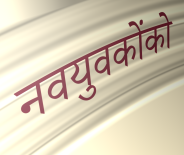
नवयुवकोंको